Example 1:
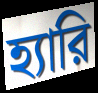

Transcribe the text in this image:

হ্যারি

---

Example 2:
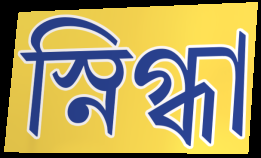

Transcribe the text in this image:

স্নিগ্ধা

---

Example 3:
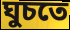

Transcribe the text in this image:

ঘুচতে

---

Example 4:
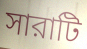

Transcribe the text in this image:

সারাটি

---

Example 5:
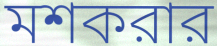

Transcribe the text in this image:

মশকরার